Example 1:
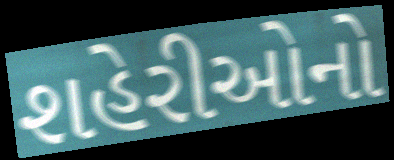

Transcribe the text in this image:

શહેરીઓનો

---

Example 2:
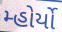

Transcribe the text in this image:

મ્હોર્યો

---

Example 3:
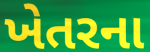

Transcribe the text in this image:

ખેતરના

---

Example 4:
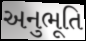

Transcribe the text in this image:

અનુભૂતિ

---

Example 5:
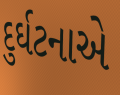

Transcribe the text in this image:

દુર્ઘટનાએ